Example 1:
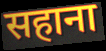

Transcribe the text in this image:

सहाना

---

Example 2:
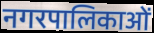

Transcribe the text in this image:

नगरपालिकाओं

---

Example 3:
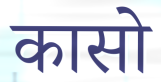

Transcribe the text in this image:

कासो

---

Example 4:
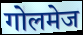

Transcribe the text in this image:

गोलमेज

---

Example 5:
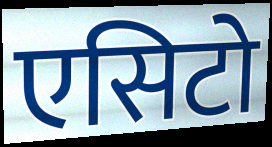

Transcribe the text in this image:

एसिटो